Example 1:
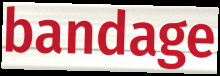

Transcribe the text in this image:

bandage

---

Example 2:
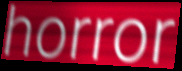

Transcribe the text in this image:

horror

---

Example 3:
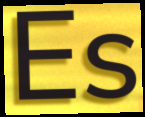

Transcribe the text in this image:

Es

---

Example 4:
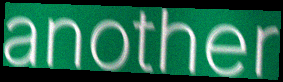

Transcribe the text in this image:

another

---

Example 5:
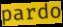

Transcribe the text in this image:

pardo